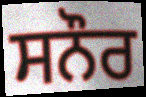
ਸਨੌਰ